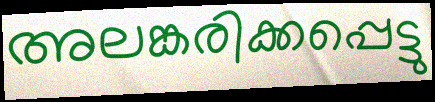
അലങ്കരിക്കപ്പെട്ടു